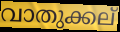
വാതുക്കല്